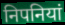
निपनियां